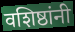
वशिष्ठांनी